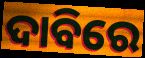
ଦାବିରେ